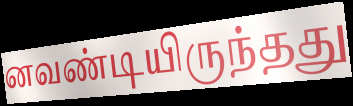
னவண்டியிருந்தது